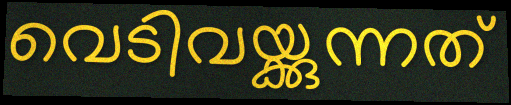
വെടിവയ്ക്കുന്നത്